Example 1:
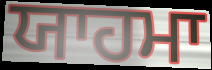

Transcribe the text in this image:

ਯਾਹਮਾ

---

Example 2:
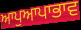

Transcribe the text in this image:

ਆਪੁਆਪਾਭਾਵ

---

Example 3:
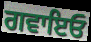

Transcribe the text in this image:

ਗਵਾਇਓ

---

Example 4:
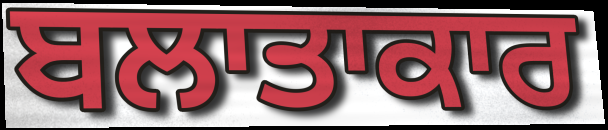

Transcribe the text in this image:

ਬਲਾਤਾਕਾਰ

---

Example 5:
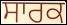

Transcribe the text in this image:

ਸਾਰਕ